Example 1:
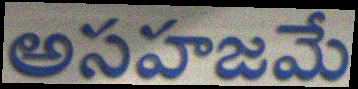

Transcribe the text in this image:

అసహజమే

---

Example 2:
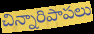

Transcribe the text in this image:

చిన్నారిపాపలు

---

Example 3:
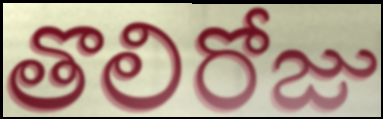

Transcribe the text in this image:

తొలిరోజు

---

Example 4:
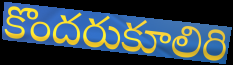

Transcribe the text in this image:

కొందరుకూలిరి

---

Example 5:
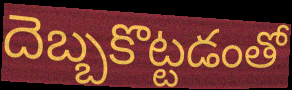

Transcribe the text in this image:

దెబ్బకొట్టడంతో